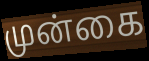
முன்கை